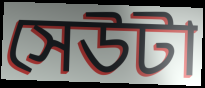
সেউটা